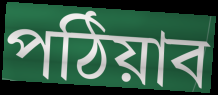
পঠিয়াব